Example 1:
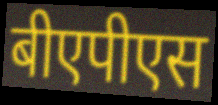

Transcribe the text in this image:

बीएपीएस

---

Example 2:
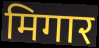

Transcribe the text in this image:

मिगार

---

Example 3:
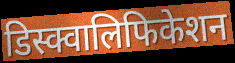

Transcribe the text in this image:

डिस्क्वालिफिकेशन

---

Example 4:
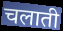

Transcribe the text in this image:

चलाती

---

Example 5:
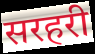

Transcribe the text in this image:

सरहरी